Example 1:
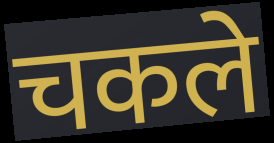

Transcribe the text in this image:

चकले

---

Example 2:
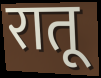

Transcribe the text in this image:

रातू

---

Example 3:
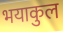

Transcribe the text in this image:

भयाकुल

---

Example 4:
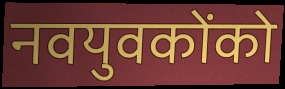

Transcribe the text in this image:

नवयुवकोंको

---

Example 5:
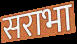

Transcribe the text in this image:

सराभा